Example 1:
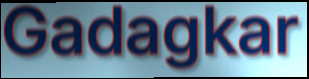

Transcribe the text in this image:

Gadagkar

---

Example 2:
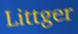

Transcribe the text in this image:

Littger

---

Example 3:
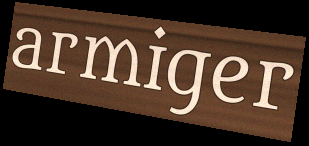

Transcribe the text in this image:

armiger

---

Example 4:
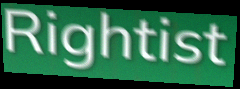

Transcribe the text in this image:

Rightist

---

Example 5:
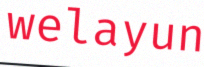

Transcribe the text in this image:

welayun